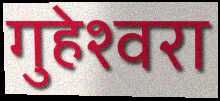
गुहेश्वरा